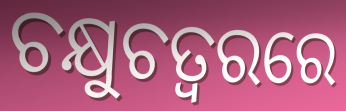
ଚକ୍ଷୁଚତ୍ୱରରେ